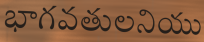
భాగవతులనియు